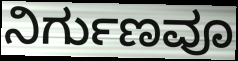
ನಿರ್ಗುಣವೂ